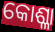
କୋଶ୍ଳା